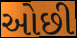
ઓછી